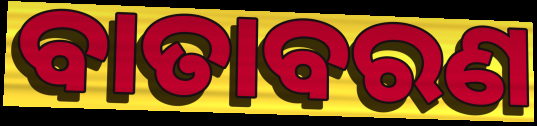
ବାତାବରଣ